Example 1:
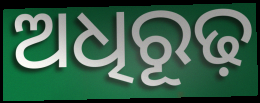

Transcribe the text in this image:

ଅଧିରୂଢ଼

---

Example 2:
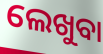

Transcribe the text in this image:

ଲେଖୁବା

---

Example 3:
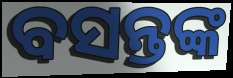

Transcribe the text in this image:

ବସନ୍ତଙ୍କ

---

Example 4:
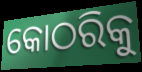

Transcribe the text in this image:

କୋଠରିକୁ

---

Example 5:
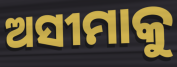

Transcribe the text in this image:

ଅସୀମାକୁ